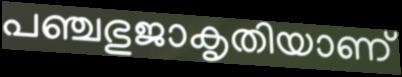
പഞ്ചഭുജാകൃതിയാണ്